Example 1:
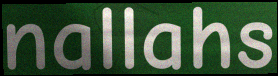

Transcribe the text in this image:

nallahs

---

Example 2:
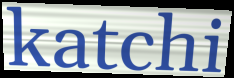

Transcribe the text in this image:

katchi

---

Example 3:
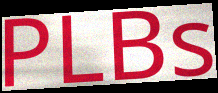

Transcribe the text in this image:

PLBs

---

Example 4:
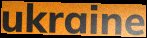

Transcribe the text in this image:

ukraine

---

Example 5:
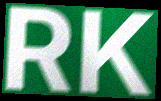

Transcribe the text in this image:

RK